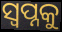
ସ୍ୱପ୍ନକୁ